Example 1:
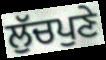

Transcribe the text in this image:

ਲੁੱਚਪੁਣੇ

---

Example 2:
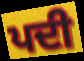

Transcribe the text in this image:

ਪਦੀ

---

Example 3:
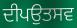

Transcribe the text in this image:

ਦੀਪਉਤਸਵ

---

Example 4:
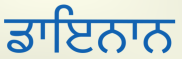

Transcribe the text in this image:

ਡਾਇਨਾਨ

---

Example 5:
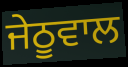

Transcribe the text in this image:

ਜੇਠੂਵਾਲ